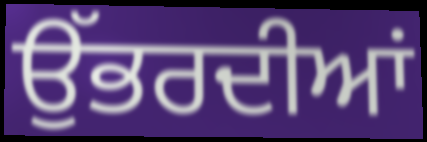
ਉੱਭਰਦੀਆਂ